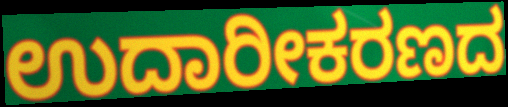
ಉದಾರೀಕರಣದ